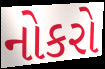
નોકરો